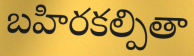
బహిరకల్పితా